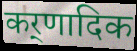
कर्णादिक